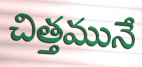
చిత్తమునే